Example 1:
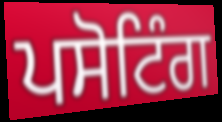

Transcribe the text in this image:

ਪਸੋਟਿੰਗ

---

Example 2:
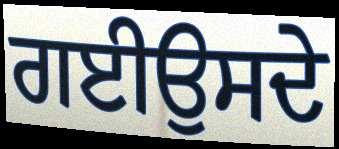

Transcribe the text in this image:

ਗਈਉਸਦੇ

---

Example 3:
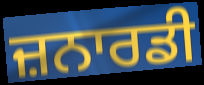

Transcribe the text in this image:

ਜ਼ਨਾਰਡੀ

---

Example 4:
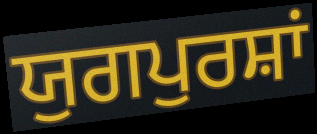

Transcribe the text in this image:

ਯੁਗਪੁਰਸ਼ਾਂ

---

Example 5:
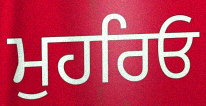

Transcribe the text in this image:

ਮੁਹਰਿਓ